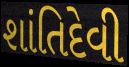
શાંતિદેવી